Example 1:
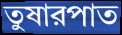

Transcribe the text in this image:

তুষারপাত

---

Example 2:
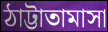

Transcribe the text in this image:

ঠাট্টাতামাসা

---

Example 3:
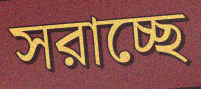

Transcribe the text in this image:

সরাচ্ছে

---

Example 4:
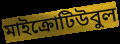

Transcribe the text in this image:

মাইক্রোটিউবুল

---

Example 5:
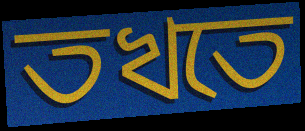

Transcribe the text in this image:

তখতে